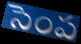
సెంప